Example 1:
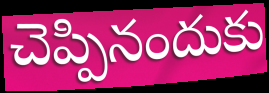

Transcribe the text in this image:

చెప్పినందుకు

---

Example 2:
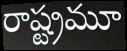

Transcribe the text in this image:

రాష్ట్రమూ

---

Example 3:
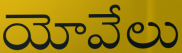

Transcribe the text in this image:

యోవేలు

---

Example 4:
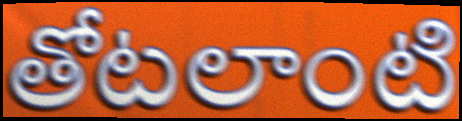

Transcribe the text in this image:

తోటలాంటి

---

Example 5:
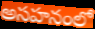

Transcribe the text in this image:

అసహనంలో